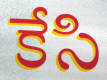
కేసి